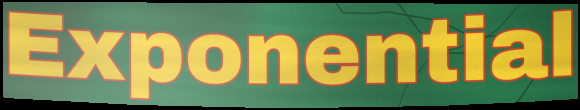
Exponential